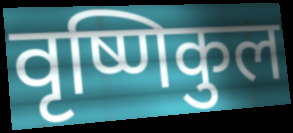
वृष्णिकुल